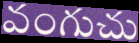
వంగుచు